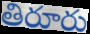
తిరూరు